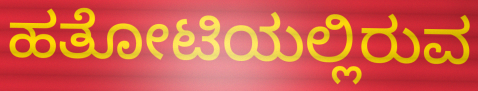
ಹತೋಟಿಯಲ್ಲಿರುವ